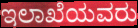
ಇಲಾಖೆಯವರು